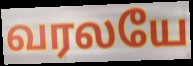
வரலயே